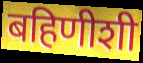
बहिणीशी